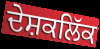
ਦੇਸ਼ਕਲਿੱਕ